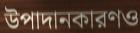
উপাদানকারণও